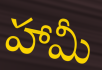
హామీ